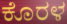
ಕೊರಳ